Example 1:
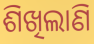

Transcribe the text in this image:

ଶିଖିଲାଣି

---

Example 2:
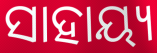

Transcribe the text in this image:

ସାହାୟ୍ୟ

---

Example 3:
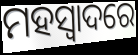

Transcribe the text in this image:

ମହସ୍ୱାଦରେ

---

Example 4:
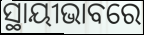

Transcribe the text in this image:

ସ୍ଥାୟୀଭାବରେ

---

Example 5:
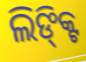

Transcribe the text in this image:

ଲିଙ୍କ୍ଟି